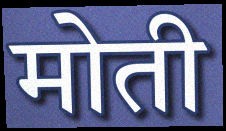
मोती